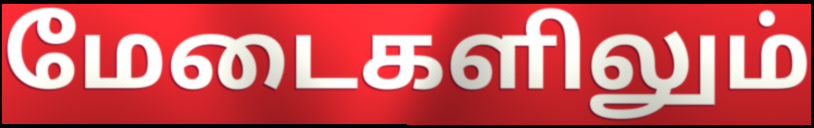
மேடைகளிலும்